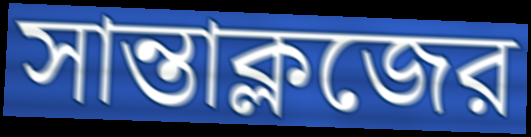
সান্তাক্লজের